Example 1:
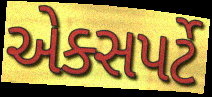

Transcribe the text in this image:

એક્સપર્ટે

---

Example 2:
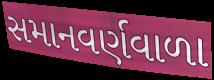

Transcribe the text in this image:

સમાનવર્ણવાળા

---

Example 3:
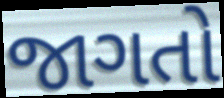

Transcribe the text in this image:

જાગતો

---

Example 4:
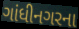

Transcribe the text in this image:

ગાંધીનગરના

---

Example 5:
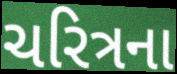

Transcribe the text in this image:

ચરિત્રના